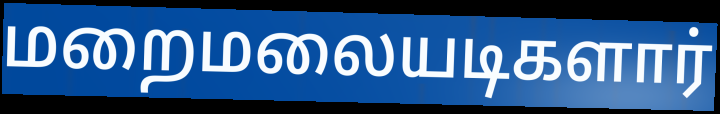
மறைமலையடிகளார்